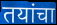
तयांचा